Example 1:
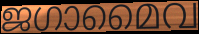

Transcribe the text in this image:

ജഗാമൈവ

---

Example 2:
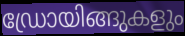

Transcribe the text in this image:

ഡ്രോയിങ്ങുകളും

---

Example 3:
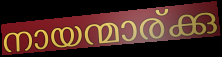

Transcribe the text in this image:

നായന്മാര്ക്കു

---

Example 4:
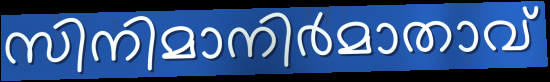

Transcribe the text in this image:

സിനിമാനിർമാതാവ്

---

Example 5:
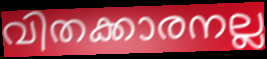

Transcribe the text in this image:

വിതക്കാരനല്ല